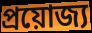
প্রয়োজ্য